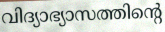
വിദ്യാഭ്യാസത്തിന്റെ